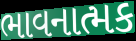
ભાવનાત્મક